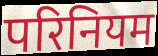
परिनियम